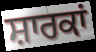
ਸ਼ਾਰਕਾਂ